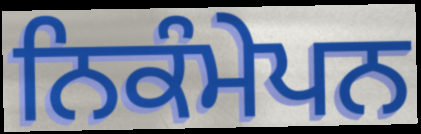
ਨਿਕੰਮੇਪਨ